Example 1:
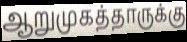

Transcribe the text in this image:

ஆறுமுகத்தாருக்கு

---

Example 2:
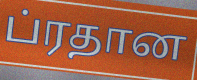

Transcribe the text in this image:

ப்ரதான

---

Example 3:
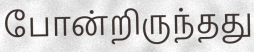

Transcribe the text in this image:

போன்றிருந்தது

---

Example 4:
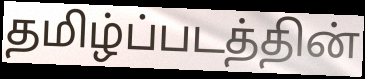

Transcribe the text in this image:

தமிழ்ப்படத்தின்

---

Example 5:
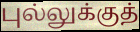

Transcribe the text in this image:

புல்லுக்குத்